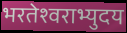
भरतेश्वराभ्युदय